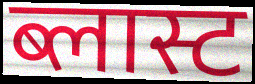
ब्लास्ट